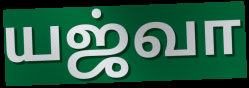
யஜ்வா